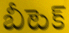
బీటెక్